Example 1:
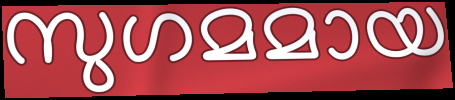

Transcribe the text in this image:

സുഗമമായ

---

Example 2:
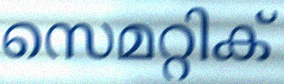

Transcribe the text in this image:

സെമറ്റിക്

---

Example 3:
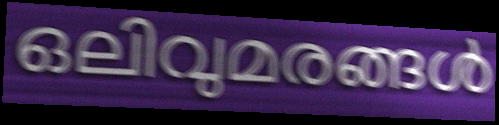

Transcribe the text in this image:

ഒലിവുമരങ്ങൾ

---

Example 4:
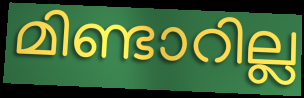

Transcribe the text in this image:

മിണ്ടാറില്ല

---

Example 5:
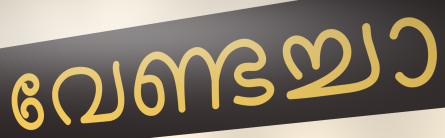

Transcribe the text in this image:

വേണ്ടച്ചാ